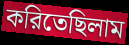
করিতেছিলাম